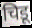
चिडू